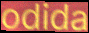
odida